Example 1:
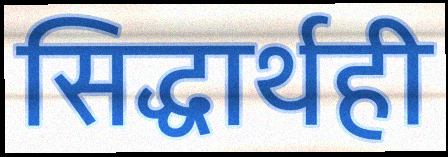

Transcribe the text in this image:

सिद्धार्थही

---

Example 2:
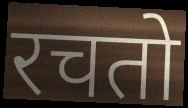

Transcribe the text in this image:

रचतो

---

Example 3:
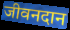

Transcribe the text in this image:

जीवनदान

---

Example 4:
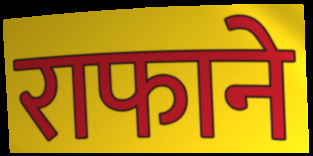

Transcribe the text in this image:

राफाने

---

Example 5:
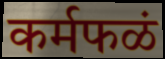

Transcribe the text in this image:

कर्मफळं